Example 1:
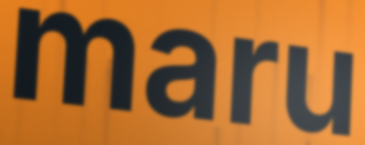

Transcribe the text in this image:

maru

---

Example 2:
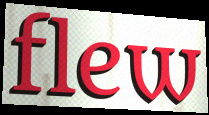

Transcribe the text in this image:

flew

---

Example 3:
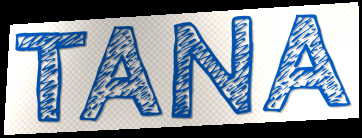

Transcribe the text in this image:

TANA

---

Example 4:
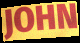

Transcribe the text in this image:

JOHN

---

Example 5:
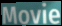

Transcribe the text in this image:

Movie